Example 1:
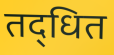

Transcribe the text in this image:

तद्धित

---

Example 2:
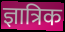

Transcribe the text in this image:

ज्ञात्रिक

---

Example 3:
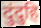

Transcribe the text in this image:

दुंदुहि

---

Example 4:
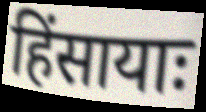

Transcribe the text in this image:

हिंसायाः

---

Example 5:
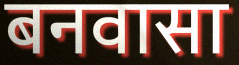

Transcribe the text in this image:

बनवासा